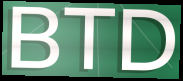
BTD